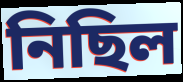
নিছিল